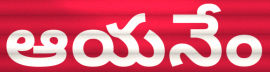
ఆయనేం